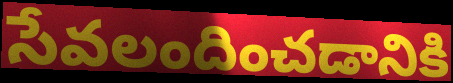
సేవలందించడానికి